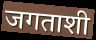
जगताशी